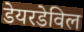
डेयरडेविल